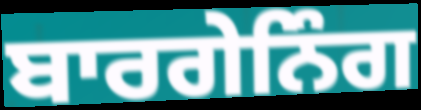
ਬਾਰਗੇਨਿੰਗ